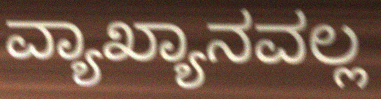
ವ್ಯಾಖ್ಯಾನವಲ್ಲ